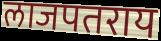
लाजपतराय